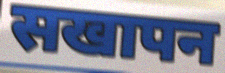
सखापन